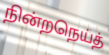
நின்றநெய்த்